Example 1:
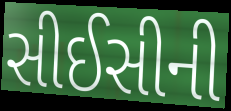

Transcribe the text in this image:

સીઈસીની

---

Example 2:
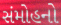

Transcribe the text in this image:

સંમોહનો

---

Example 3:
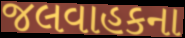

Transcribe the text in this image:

જલવાહકના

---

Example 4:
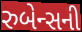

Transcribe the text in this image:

રુબેન્સની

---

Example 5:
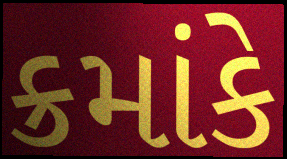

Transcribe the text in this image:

ક્રમાંકે